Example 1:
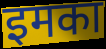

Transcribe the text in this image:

इमका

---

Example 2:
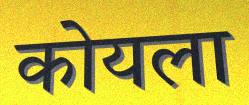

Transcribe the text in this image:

कोयला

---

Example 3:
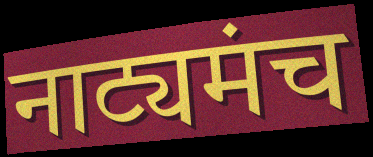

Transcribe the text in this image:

नाट्यमंच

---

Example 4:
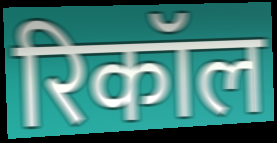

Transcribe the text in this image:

रिकॉल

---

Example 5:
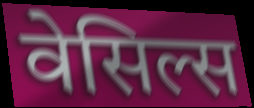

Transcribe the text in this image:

वेसिल्स